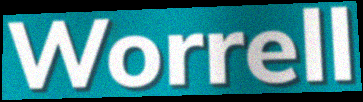
Worrell